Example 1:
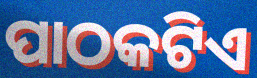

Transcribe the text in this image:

ପାଠକଟିଏ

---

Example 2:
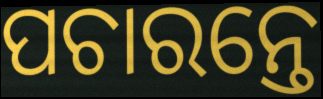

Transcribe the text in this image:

ପଚାରନ୍ତେ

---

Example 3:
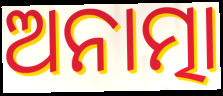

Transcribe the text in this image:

ଅନାତ୍ମା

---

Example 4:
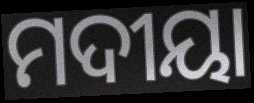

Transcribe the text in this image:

ମଦୀୟା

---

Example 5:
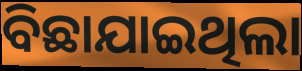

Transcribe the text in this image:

ବିଛାଯାଇଥିଲା